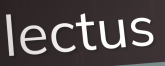
lectus